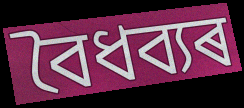
বৈধব্যৰ